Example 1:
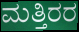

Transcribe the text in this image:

ಮತ್ತಿರರ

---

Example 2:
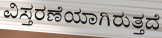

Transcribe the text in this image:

ವಿಸ್ತರಣೆಯಾಗಿರುತ್ತದೆ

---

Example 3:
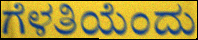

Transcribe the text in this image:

ಗೆಳತಿಯೆಂದು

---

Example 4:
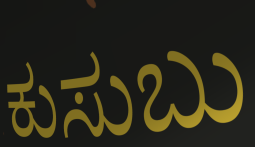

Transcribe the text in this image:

ಕುಸುಬು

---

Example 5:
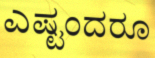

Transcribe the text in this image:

ಎಷ್ಟಂದರೂ